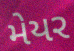
મેયર